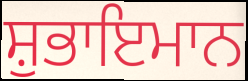
ਸ਼ੁਭਾਇਮਾਨ